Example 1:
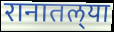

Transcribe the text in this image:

रानातल्या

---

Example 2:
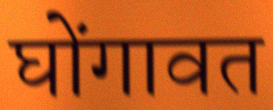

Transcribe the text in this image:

घोंगावत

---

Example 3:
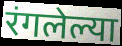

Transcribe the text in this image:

रंगलेल्या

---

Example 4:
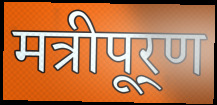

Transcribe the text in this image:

मत्रीपूर्ण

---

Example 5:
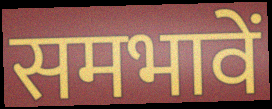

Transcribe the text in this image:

समभावें